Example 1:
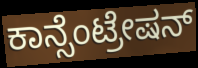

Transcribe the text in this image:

ಕಾನ್ಸೆಂಟ್ರೇಷನ್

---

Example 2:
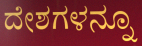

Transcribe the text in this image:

ದೇಶಗಳನ್ನೂ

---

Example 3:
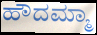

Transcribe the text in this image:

ಹೌದಮ್ಮಾ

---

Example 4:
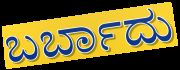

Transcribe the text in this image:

ಬರ್ಬಾದು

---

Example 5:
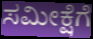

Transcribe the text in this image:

ಸಮೀಕ್ಷೆಗೆ